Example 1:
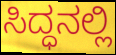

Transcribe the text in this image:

ಸಿದ್ಧನಲ್ಲಿ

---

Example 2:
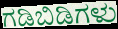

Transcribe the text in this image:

ಗಡಿಬಿಡಿಗಳು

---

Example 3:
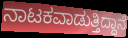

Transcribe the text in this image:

ನಾಟಕವಾಡುತ್ತಿದ್ದಾನೆ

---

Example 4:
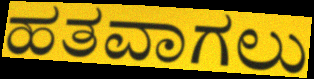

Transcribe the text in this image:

ಹತವಾಗಲು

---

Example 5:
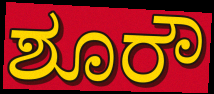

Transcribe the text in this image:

ಶೂರೌ